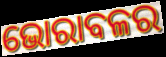
ଭୋରାବଳର